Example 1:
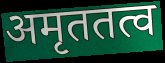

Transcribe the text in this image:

अमृततत्व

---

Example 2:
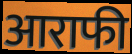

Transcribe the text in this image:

आराफी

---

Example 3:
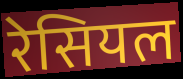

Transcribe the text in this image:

रेसियल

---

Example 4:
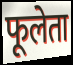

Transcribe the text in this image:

फूलेता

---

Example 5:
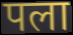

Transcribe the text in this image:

पला